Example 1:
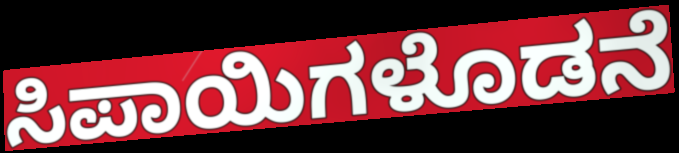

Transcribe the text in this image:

ಸಿಪಾಯಿಗಳೊಡನೆ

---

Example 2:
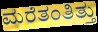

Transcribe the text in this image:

ಮರೆತಂತಿತ್ತು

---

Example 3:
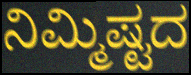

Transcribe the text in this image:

ನಿಮ್ಮಿಷ್ಟದ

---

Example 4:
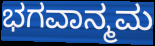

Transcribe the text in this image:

ಭಗವಾನ್ಮಮ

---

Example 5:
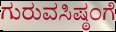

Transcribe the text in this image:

ಗುರುವಸಿಷ್ಠಂಗೆ